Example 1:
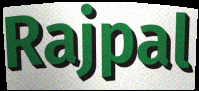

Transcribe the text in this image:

Rajpal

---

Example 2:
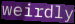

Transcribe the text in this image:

weirdly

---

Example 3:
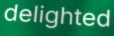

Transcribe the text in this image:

delighted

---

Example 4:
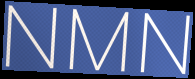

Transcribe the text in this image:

NMN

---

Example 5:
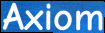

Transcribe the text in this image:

Axiom